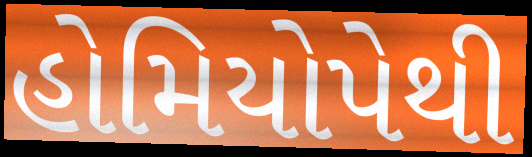
હોમિયોપેથી